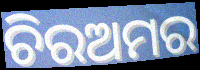
ଚିରଅମର